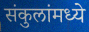
संकुलांमध्ये